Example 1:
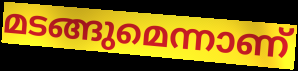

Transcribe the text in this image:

മടങ്ങുമെന്നാണ്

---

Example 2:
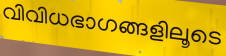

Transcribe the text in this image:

വിവിധഭാഗങ്ങളിലൂടെ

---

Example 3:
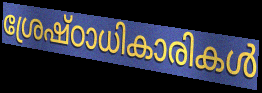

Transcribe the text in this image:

ശ്രേഷ്ഠാധികാരികൾ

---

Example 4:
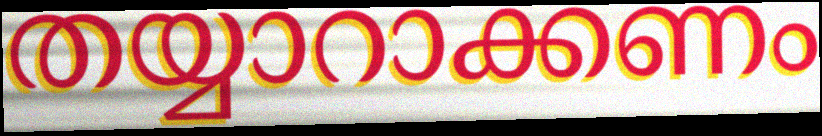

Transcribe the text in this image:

തയ്യാറാക്കണം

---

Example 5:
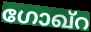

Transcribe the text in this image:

ഗോഖ്റ